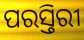
ପରସ୍ତିରୀ